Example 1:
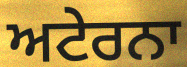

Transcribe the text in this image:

ਅਟੇਰਨਾ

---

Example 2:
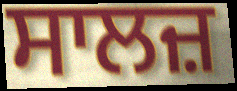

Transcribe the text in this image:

ਸਾਲਜ਼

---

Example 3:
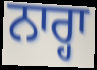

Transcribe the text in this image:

ਨਾਰ੍ਹਾ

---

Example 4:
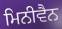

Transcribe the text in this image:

ਮਿਨੀਵੈਨ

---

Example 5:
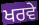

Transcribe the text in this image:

ਖਰਵੇ